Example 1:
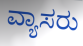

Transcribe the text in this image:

ವ್ಯಾಸರು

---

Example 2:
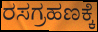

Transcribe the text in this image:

ರಸಗ್ರಹಣಕ್ಕೆ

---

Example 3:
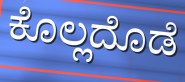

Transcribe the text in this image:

ಕೊಲ್ಲದೊಡೆ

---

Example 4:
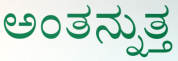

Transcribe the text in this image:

ಅಂತನ್ನುತ್ತ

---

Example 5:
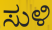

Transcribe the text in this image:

ಸುಳಿ